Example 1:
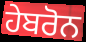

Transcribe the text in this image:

ਹੇਬਰੋਨ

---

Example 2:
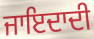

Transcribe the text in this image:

ਜਾਇਦਾਦੀ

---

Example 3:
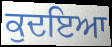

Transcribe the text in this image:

ਕੁਦਇਆ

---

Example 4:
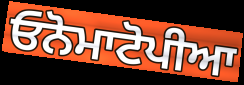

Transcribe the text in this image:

ਓਨੋਮਾਟੋਪੀਆ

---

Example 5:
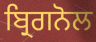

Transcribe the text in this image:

ਬ੍ਰਿਗਨੋਲ